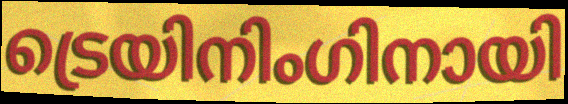
ട്രെയിനിംഗിനായി